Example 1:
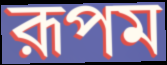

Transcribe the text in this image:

রূপম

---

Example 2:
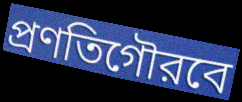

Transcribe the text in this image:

প্রণতিগৌরবে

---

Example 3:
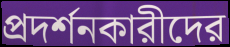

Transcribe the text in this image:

প্রদর্শনকারীদের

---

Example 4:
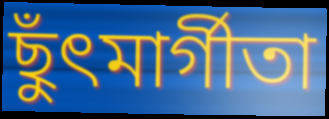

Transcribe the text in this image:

ছুঁৎমার্গীতা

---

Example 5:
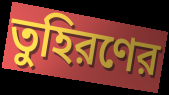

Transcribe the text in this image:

তুহিরণের